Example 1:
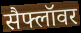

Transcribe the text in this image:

सैफ्लॉवर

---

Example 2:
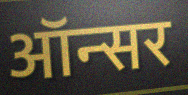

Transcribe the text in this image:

ऑन्सर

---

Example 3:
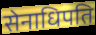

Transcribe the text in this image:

सेनाधिपति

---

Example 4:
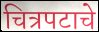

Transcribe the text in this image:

चित्रपटाचे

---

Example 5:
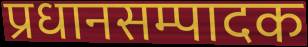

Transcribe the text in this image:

प्रधानसम्पादक